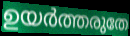
ഉയർത്തരുതേ